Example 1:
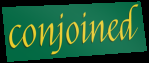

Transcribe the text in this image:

conjoined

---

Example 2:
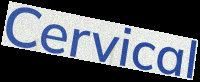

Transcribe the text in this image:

Cervical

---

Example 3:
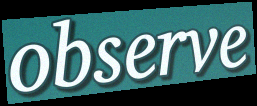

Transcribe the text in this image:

observe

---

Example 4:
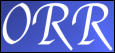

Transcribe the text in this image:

ORR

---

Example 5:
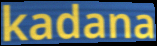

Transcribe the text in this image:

kadana